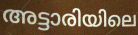
അട്ടാരിയിലെ